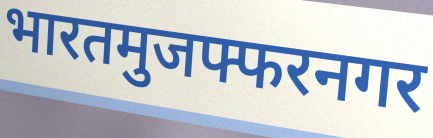
भारतमुजफ्फरनगर